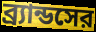
ব্র্যান্ডসের